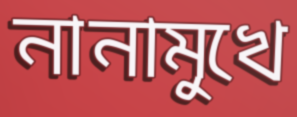
নানামুখে